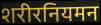
शरीरनियमन